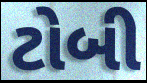
ટોબી